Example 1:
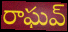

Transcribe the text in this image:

రాఘవ్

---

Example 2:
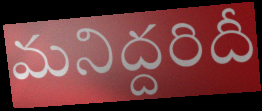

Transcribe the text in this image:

మనిద్దరిదీ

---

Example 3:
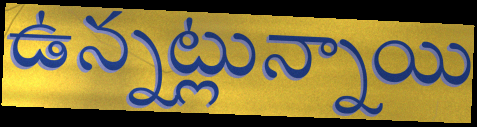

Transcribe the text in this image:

ఉన్నట్లున్నాయి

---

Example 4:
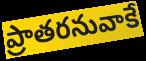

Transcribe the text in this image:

ప్రాతరనువాకే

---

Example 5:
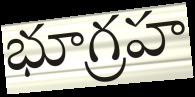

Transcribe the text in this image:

భూగ్రహ